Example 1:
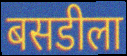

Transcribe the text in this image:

बसडीला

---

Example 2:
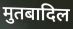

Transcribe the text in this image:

मुतबादिल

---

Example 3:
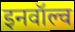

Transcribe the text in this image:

इनवॉल्व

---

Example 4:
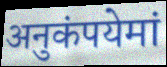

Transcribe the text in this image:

अनुकंपयेमां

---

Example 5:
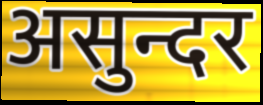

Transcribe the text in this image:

असुन्दर